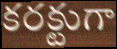
కరక్టుగా